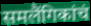
समलैंगिकांचं